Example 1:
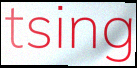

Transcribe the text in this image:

tsing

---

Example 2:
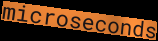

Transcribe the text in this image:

microseconds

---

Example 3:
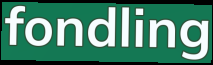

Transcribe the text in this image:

fondling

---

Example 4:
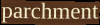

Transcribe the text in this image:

parchment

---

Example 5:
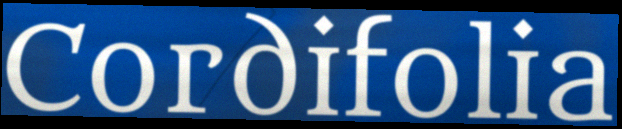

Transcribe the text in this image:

Cordifolia